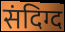
संदिग्द